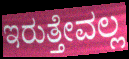
ಇರುತ್ತೇವಲ್ಲ